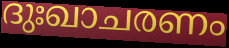
ദുഃഖാചരണം